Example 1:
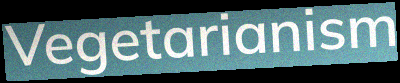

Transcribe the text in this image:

Vegetarianism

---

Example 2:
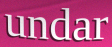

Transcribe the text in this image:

undar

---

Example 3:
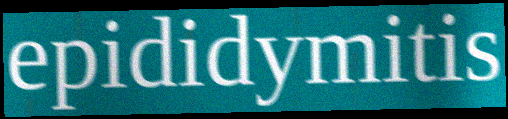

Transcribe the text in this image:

epididymitis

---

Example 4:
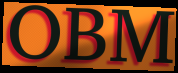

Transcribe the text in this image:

OBM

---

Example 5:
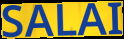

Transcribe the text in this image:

SALAI